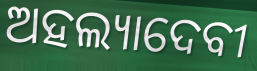
ଅହଲ୍ୟାଦେବୀ